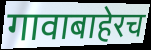
गावाबाहेरच